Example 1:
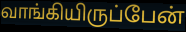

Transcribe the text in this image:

வாங்கியிருப்பேன்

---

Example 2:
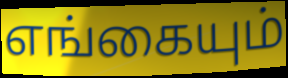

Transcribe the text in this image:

எங்கையும்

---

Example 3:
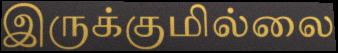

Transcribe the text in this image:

இருக்குமில்லை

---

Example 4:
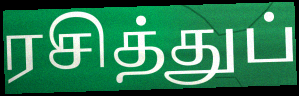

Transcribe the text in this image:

ரசித்துப்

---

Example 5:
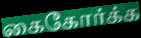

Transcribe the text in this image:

கைகோர்க்க